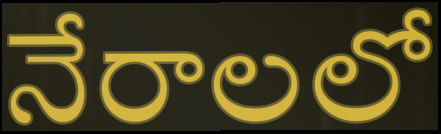
నేరాలలో